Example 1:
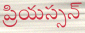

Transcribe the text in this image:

ప్రియస్సన్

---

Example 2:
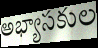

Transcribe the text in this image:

అభ్యాసకుల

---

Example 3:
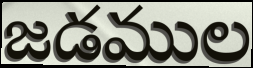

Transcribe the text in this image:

జడముల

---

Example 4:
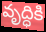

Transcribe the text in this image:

వృద్ధికి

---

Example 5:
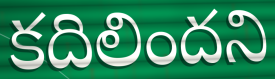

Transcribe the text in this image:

కదిలిందని